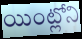
యింట్లోని